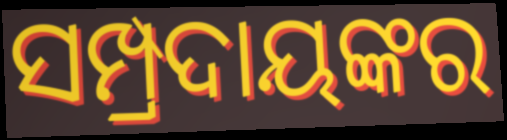
ସମ୍ପ୍ରଦାୟଙ୍କର